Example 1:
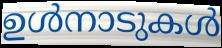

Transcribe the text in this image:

ഉൾനാടുകൾ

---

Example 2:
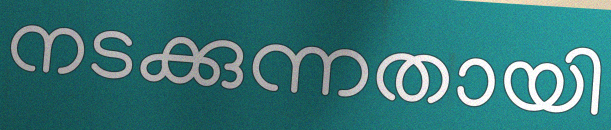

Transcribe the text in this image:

നടക്കുന്നതായി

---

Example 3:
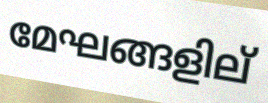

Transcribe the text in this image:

മേഘങ്ങളില്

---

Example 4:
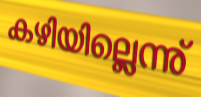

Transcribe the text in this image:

കഴിയില്ലെന്നു്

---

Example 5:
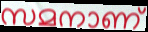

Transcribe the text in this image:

സമനാണ്